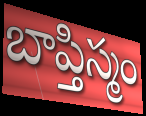
బాప్తిస్మం